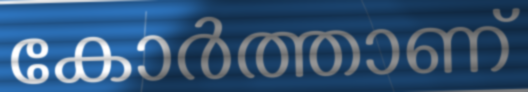
കോർത്താണ്